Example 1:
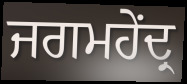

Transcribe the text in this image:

ਜਗਮਹੇਂਦ੍ਰ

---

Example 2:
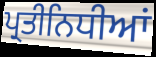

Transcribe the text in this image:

ਪ੍ਰਤੀਨਿਧੀਆਂ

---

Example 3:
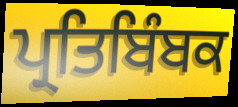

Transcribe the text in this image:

ਪ੍ਰਤਿਬਿੰਬਕ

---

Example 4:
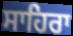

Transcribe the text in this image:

ਸਾਹਿਰਾ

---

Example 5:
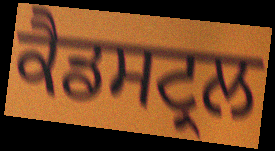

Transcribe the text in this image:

ਕੈਡਸਟ੍ਰਲ